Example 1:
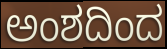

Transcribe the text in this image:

ಅಂಶದಿಂದ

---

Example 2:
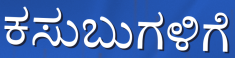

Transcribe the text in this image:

ಕಸುಬುಗಳಿಗೆ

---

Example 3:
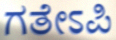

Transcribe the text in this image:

ಗತೇಽಪಿ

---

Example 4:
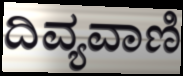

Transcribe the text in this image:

ದಿವ್ಯವಾಣಿ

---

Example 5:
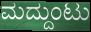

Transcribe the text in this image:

ಮದ್ದುಂಟು